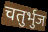
चतुर्भुज